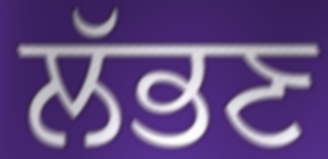
ਲੱਭਣ